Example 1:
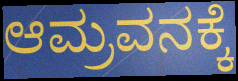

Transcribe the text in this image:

ಆಮ್ರವನಕ್ಕೆ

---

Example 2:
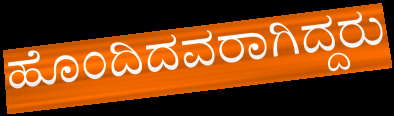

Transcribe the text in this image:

ಹೊಂದಿದವರಾಗಿದ್ದರು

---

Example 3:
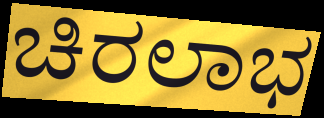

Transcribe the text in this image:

ಚಿರಲಾಭ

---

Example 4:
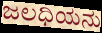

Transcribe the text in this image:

ಜಲಧಿಯನು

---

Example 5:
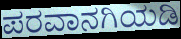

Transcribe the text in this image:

ಪರವಾನಗಿಯಡಿ